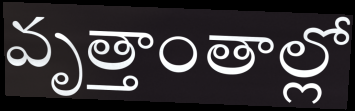
వృత్తాంతాల్లో